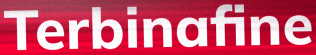
Terbinafine